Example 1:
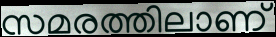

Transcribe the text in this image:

സമരത്തിലാണ്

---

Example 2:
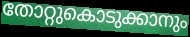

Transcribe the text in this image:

തോറ്റുകൊടുക്കാനും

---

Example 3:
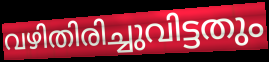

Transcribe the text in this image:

വഴിതിരിച്ചുവിട്ടതും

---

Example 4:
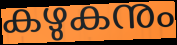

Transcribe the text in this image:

കഴുകനും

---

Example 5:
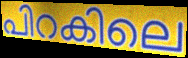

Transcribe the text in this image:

പിറകിലെ